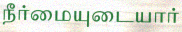
நீர்மையுடையார்